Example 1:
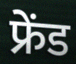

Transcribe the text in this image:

फ्रेंड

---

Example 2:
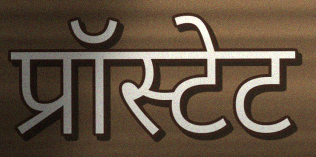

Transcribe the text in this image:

प्रॉस्टेट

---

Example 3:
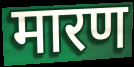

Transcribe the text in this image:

मारण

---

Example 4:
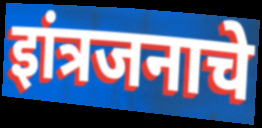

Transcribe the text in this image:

इांत्रजनाचे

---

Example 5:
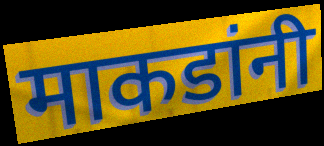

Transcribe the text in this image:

माकडांनी